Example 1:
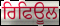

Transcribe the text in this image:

ਰਿਫਿਊਲ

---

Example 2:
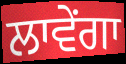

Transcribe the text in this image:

ਲਾਵੇਂਗਾ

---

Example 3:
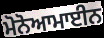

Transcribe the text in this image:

ਮੋਨੋਆਮਾਈਨ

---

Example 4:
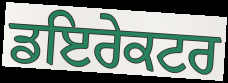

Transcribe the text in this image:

ਡਇਰੇਕਟਰ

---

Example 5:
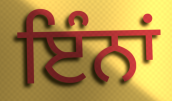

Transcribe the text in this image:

ਇੰਨਾਂ